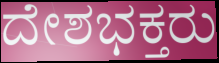
ದೇಶಭಕ್ತರು